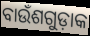
ବାଉଁଶଗୁଡ଼ାକ